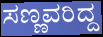
ಸಣ್ಣವರಿದ್ದ